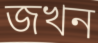
জখন